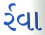
ર્રવા